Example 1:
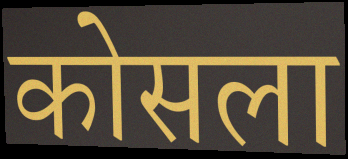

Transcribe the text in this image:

कोसला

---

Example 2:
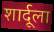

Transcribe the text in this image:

शार्दूला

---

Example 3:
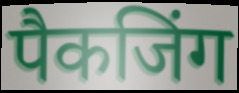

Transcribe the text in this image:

पैकजिंग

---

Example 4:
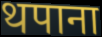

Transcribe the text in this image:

थपाना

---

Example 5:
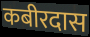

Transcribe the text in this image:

कबीरदास